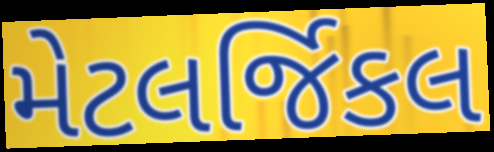
મેટલર્જિકલ